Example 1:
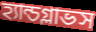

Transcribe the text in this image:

হ্যান্ডগ্লাভস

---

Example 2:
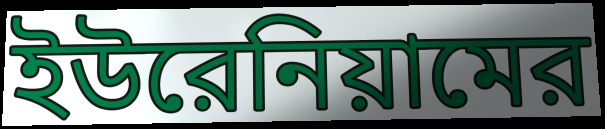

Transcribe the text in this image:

ইউরেনিয়ামের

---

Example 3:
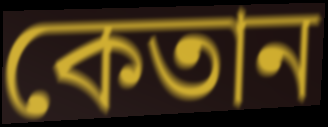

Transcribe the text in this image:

কেতান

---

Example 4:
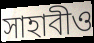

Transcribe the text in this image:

সাহাবীও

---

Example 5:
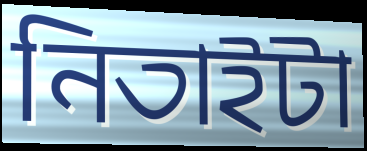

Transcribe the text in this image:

নিতাইটা